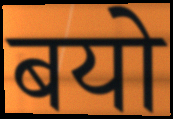
बयो